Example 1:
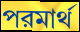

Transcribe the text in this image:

পরমার্থ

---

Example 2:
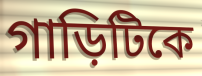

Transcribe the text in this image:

গাড়িটিকে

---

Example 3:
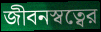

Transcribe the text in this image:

জীবনস্বত্বের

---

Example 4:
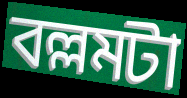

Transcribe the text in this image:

বল্লমটা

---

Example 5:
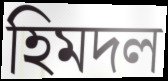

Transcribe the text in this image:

হিমদল